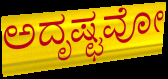
ಅದೃಷ್ಟವೋ